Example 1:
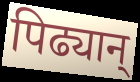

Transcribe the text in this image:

पिढ्यान्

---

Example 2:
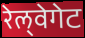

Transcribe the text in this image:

रेल्वेगेट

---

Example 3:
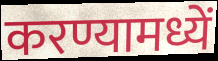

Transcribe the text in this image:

करण्यामध्यें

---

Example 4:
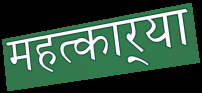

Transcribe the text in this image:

महत्कार्या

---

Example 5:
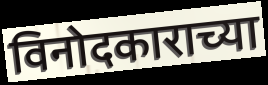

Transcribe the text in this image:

विनोदकाराच्या